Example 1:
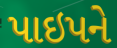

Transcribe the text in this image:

પાઇપને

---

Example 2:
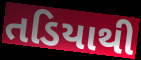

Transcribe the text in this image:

તડિયાથી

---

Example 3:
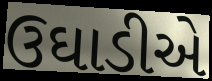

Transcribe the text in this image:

ઉઘાડીએ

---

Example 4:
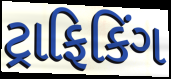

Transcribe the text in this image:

ટ્રાફિકિંગ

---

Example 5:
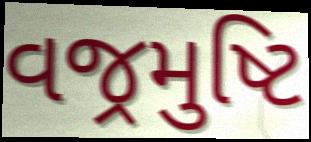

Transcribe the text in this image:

વજ્રમુષ્ટિ